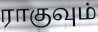
ராகுவும்